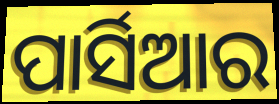
ପାର୍ସିଆର